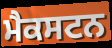
ਮੈਕਸਟਨ